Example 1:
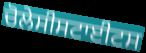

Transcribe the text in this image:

ਚੋਲੇਸੀਸਟਾਈਟਸ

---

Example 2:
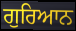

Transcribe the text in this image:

ਗੁਰਿਆਨ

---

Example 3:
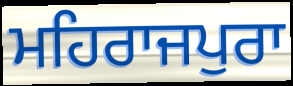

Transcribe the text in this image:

ਮਹਿਰਾਜਪੁਰਾ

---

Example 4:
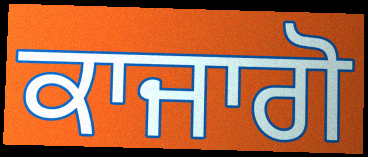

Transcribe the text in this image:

ਕਾਜਾਗੋ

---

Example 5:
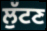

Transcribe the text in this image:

ਲੁੱਟਣ